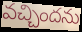
వచ్చిందను